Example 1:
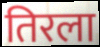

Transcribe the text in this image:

तिरला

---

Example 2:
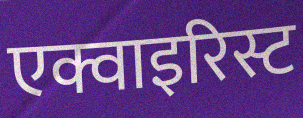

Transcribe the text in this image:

एक्वाइरिस्ट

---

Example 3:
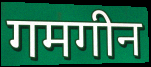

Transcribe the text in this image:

गमगीन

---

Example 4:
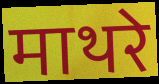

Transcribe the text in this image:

माथरे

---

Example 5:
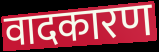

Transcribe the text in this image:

वादकारण